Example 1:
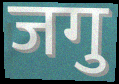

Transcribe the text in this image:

जगु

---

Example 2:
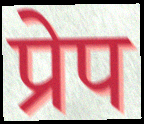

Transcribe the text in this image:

प्रेप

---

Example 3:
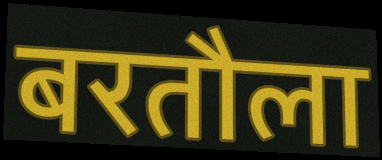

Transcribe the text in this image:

बरतौला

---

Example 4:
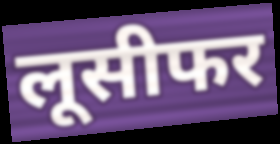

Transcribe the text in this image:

लूसीफर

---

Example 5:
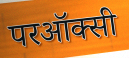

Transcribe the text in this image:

परऑक्सी